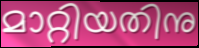
മാറ്റിയതിനു